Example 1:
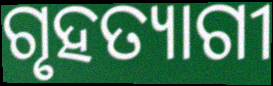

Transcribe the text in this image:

ଗୃହତ୍ୟାଗୀ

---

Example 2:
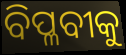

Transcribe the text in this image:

ବିପ୍ଳବୀକୁ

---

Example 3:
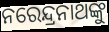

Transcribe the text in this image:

ନରେନ୍ଦ୍ରନାଥଙ୍କୁ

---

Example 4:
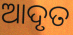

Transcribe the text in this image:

ଆଦୃତ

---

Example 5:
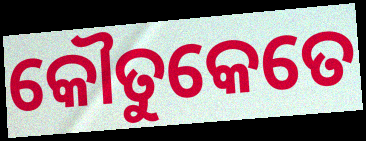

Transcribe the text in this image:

କୌତୁକେତେ